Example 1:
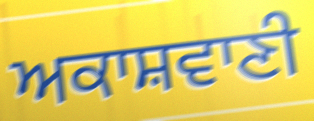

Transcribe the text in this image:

ਅਕਾਸ਼ਵਾਣੀ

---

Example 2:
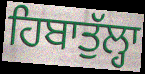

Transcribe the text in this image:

ਹਿਬਾਤੁੱਲ੍ਹਾ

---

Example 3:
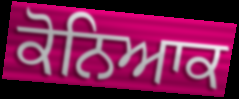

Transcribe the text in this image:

ਕੋਨਿਆਕ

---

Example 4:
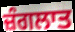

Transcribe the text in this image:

ਜ਼ੰਗਲਾਤ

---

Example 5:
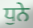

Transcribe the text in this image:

ਧੁਨੇ